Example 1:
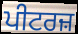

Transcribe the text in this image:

ਪੀਟਰਜ਼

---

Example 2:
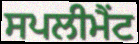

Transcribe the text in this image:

ਸਪਲੀਮੈਂਟ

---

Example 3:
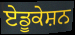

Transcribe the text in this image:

ਏਡੂਕੇਸ਼ਨ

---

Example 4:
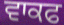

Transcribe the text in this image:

ਵਾਕਫ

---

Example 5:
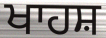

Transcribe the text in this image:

ਖਾਹਸ਼